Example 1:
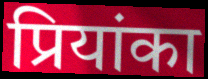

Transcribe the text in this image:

प्रियांका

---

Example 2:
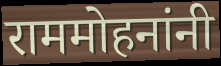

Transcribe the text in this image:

राममोहनांनी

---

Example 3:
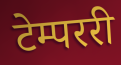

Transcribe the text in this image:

टेम्पररी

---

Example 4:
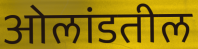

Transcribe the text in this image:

ओलांडतील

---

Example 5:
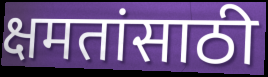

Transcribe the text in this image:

क्षमतांसाठी